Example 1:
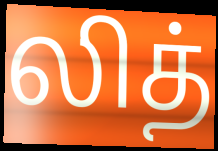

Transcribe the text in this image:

லித்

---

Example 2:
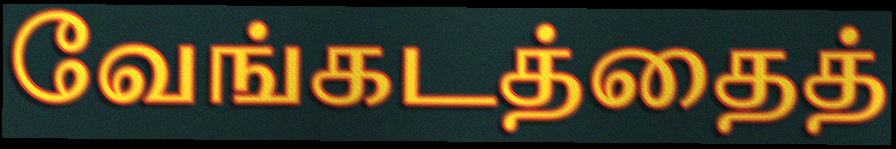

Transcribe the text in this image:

வேங்கடத்தைத்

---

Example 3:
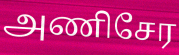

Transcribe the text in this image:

அணிசேர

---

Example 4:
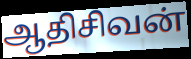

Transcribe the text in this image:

ஆதிசிவன்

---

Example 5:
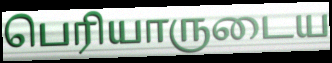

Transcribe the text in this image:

பெரியாருடைய